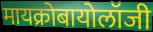
मायक्रोबायोलॉजी